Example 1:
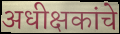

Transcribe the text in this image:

अधीक्षकांचे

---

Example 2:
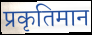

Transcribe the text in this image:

प्रकृतिमान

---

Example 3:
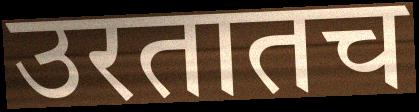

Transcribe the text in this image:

उरतातच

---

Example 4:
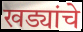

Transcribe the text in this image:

खड्यांचे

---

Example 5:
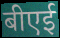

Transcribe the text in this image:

बीएई